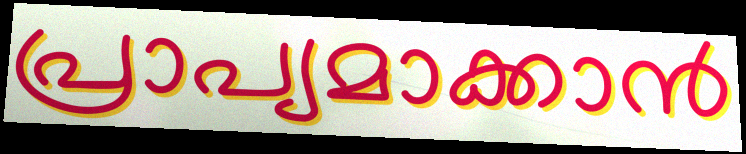
പ്രാപ്യമാക്കാൻ